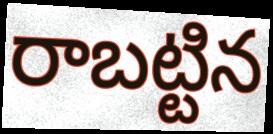
రాబట్టిన